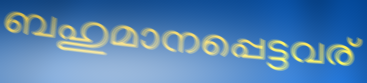
ബഹുമാനപ്പെട്ടവര്